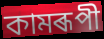
কামৰূপী